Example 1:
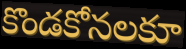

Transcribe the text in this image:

కొండకోనలకూ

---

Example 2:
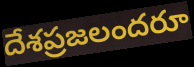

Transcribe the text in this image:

దేశప్రజలందరూ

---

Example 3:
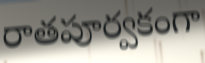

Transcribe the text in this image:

రాతపూర్వకంగా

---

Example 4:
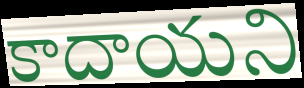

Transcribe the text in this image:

కాదాయని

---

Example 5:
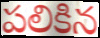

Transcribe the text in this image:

పలికిన